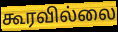
கூரவில்லை